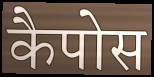
कैपोस